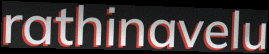
rathinavelu